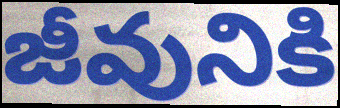
జీవునికి